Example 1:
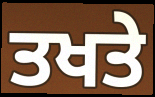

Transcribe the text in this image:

ਤਖਤੇ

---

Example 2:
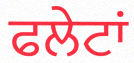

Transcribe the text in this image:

ਫਲੇਟਾਂ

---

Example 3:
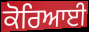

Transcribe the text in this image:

ਕੋਰਿਆਈ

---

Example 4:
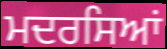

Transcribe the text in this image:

ਮਦਰਸਿਆਂ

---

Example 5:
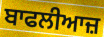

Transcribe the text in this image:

ਬਾਫਲੀਆਜ਼